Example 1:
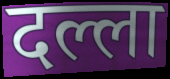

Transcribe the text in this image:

दल्ला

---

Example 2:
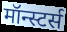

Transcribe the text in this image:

मॉन्स्टर्स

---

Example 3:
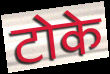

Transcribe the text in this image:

टोके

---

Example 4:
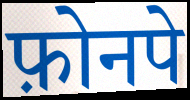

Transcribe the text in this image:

फ़ोनपे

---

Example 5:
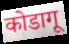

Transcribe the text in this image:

कोडागू